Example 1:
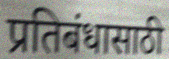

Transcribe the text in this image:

प्रतिबंधासाठी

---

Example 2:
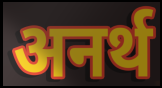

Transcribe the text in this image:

अनर्थ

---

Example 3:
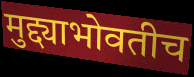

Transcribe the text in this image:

मुद्द्याभोवतीच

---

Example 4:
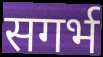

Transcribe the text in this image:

सगर्भ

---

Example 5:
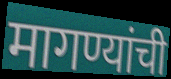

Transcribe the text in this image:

मागण्यांची